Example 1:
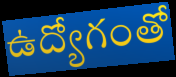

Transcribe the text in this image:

ఉద్యోగంతో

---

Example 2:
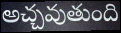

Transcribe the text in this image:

అచ్చవుతుంది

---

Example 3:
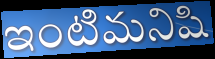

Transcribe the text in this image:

ఇంటిమనిషి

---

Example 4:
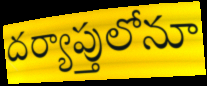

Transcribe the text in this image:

దర్యాప్తులోనూ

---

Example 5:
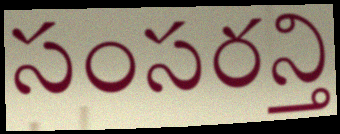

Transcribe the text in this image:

సంసరన్తి